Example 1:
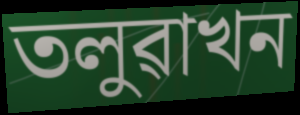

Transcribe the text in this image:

তলুৱাখন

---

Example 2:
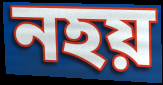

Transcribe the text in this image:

নহয়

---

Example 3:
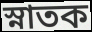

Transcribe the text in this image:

স্নাতক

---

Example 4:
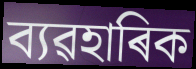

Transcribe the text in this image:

ব্যৱহাৰিক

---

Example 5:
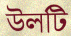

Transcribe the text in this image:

উলটি